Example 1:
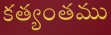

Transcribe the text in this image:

కత్యంతము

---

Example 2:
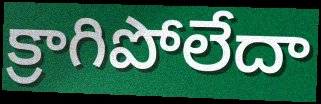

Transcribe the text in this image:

క్రాగిపోలేదా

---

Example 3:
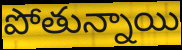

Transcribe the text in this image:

పోతున్నాయి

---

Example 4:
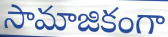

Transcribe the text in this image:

సామాజికంగా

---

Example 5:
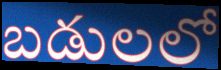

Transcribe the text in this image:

బడులలో